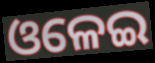
ଓଳେଇ